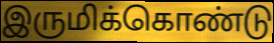
இருமிக்கொண்டு